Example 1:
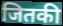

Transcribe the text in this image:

जितकी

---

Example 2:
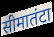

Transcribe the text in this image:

सीमातंटा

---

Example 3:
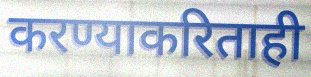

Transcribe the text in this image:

करण्याकरिताही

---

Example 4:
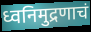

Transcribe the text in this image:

ध्वनिमुद्रणाचं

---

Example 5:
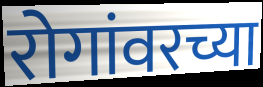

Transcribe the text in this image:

रोगांवरच्या